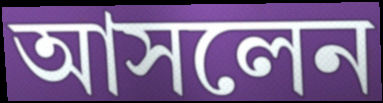
আসলেন